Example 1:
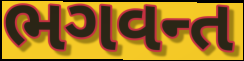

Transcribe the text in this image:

ભગવન્ત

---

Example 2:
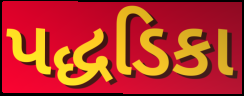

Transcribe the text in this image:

પદ્ધડિકા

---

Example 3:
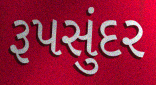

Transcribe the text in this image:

રૂપસુંદર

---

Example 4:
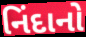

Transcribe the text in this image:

નિંદાનો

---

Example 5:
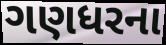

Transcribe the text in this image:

ગણધરના